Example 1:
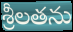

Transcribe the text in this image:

శ్రీలతను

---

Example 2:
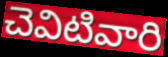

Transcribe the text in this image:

చెవిటివారి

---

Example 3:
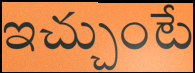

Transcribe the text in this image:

ఇచ్చుంటే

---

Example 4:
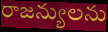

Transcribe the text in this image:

రాజన్యులను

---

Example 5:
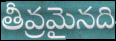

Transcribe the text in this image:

తీవ్రమైనది